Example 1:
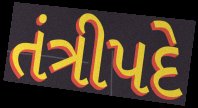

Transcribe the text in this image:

તંત્રીપદે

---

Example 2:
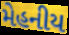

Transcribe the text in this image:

મેહનીય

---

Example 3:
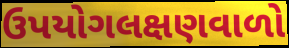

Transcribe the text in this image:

ઉપયોગલક્ષણવાળો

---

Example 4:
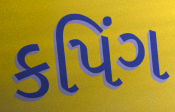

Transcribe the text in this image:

કપિંગ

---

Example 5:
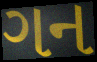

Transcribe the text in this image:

ગન